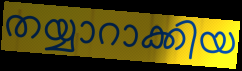
തയ്യാറാക്കിയ